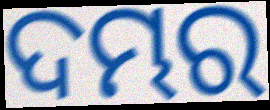
ଦମ୍ଭର